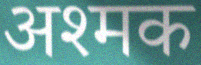
अश्मक